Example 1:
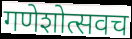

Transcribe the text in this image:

गणेशोत्सवच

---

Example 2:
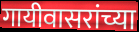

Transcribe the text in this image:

गायीवासरांच्या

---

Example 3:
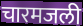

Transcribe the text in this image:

चारमजली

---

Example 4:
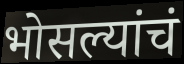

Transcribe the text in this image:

भोसल्यांचं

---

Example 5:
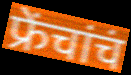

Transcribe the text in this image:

फ्रेंचांचं